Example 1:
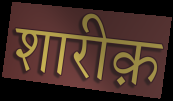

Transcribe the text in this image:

शारीक़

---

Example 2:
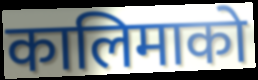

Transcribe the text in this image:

कालिमाको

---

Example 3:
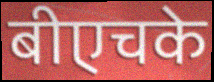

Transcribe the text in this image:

बीएचके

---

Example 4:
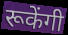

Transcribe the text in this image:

रूकेंगी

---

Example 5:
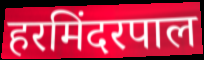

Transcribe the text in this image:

हरमिंदरपाल